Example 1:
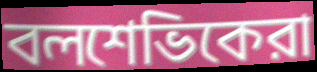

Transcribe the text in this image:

বলশেভিকেরা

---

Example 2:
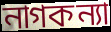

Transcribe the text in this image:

নাগকন্যা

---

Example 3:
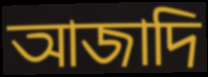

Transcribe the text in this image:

আজাদি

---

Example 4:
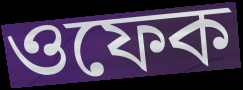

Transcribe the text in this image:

ওফেক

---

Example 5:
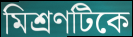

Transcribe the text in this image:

মিশ্রণটিকে